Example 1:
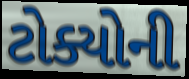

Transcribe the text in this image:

ટોક્યોની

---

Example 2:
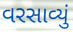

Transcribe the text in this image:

વરસાવ્યું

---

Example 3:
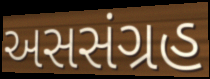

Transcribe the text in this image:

અસસંગ્રહ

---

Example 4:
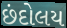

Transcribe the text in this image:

છંદોલય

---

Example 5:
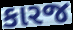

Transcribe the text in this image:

કારજ